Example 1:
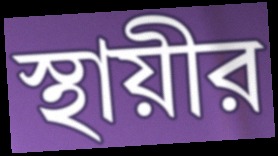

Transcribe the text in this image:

স্থায়ীর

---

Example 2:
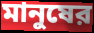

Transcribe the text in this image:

মানুষের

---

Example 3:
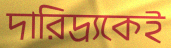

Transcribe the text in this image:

দারিদ্র্যকেই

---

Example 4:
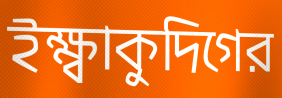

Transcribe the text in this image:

ইক্ষ্বাকুদিগের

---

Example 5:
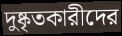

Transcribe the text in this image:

দুষ্কৃতকারীদের